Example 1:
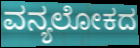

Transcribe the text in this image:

ವನ್ಯಲೋಕದ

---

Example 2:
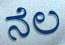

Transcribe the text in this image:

ನೆಲ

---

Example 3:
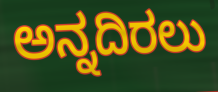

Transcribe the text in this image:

ಅನ್ನದಿರಲು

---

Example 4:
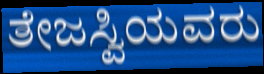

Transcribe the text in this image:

ತೇಜಸ್ವಿಯವರು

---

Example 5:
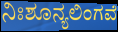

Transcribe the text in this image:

ನಿಃಶೂನ್ಯಲಿಂಗವೆ